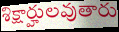
శిక్షార్హులవుతారు